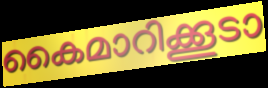
കൈമാറിക്കൂടാ